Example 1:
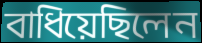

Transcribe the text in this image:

বাধিয়েছিলেন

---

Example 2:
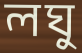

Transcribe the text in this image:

লঘু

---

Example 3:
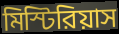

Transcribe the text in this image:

মিস্টিরিয়াস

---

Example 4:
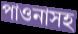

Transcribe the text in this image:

পাওনাসহ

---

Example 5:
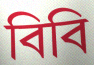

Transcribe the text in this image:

বিবি